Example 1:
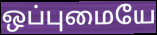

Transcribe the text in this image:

ஒப்புமையே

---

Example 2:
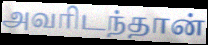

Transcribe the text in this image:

அவரிடந்தான்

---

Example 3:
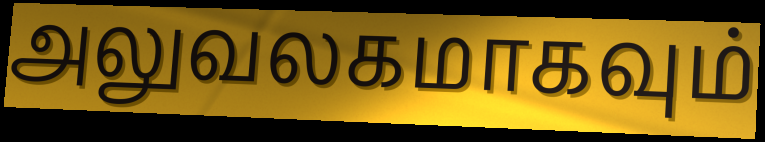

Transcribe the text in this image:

அலுவலகமாகவும்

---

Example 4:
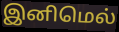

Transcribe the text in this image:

இனிமெல்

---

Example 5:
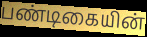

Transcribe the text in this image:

பண்டிகையின்